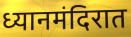
ध्यानमंदिरात